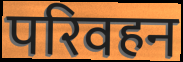
परिवहन